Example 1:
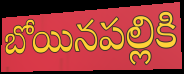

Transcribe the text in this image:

బోయినపల్లికి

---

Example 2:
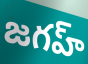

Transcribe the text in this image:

జగహ్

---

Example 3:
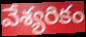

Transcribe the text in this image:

వేశ్యరికం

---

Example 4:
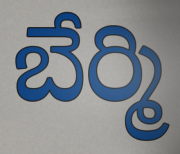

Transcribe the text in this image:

బేర్మి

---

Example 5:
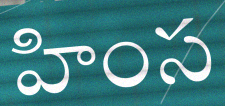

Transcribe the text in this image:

హింస